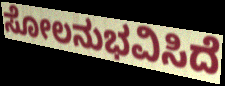
ಸೋಲನುಭವಿಸಿದೆ